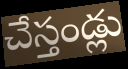
చేస్తండ్లు